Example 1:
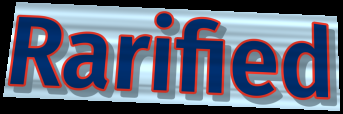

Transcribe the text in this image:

Rarified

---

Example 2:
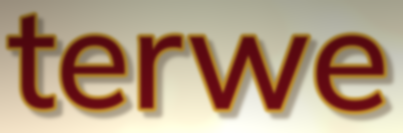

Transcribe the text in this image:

terwe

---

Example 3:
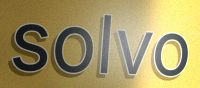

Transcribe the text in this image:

solvo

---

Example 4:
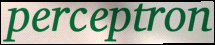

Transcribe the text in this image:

perceptron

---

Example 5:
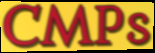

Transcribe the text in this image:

CMPs